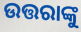
ଉତ୍ତରାଙ୍କୁ